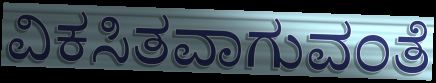
ವಿಕಸಿತವಾಗುವಂತೆ